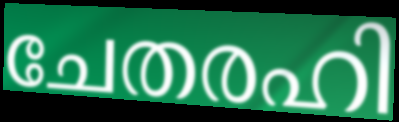
ചേതരഹി